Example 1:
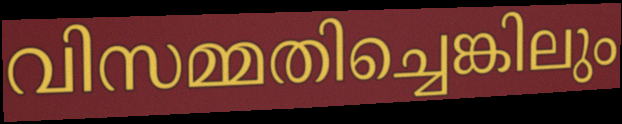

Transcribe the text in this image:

വിസമ്മതിച്ചെങ്കിലും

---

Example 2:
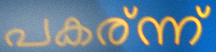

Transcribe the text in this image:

പകര്ന്ന്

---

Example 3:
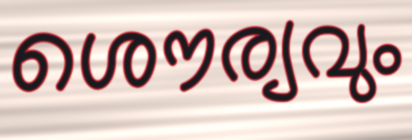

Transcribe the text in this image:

ശൌര്യവും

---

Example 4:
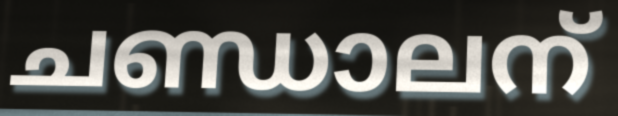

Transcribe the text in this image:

ചണ്ഡാലന്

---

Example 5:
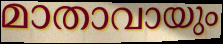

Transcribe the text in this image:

മാതാവായും